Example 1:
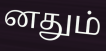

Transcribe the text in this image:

னதும்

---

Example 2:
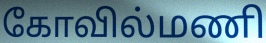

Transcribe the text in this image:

கோவில்மணி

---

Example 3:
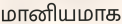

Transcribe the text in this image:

மானியமாக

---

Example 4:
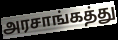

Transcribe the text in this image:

அரசாங்கத்து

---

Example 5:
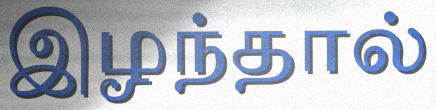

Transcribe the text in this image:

இழந்தால்